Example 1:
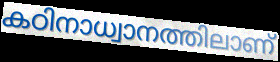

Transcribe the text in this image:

കഠിനാധ്വാനത്തിലാണ്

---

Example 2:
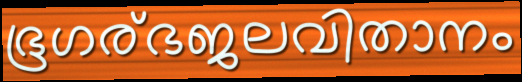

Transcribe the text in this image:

ഭൂഗര്ഭജലവിതാനം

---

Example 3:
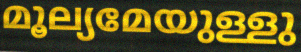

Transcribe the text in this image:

മൂല്യമേയുള്ളു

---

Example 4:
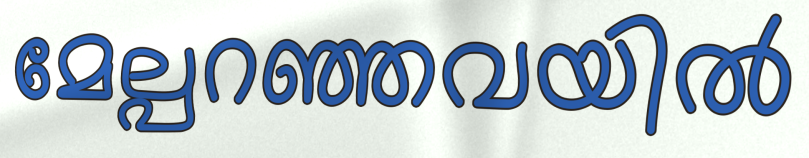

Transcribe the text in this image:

മേല്പറഞ്ഞവയിൽ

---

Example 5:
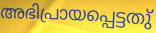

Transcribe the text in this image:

അഭിപ്രായപ്പെട്ടതു്